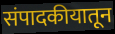
संपादकीयातून